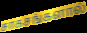
சாகசங்களால்